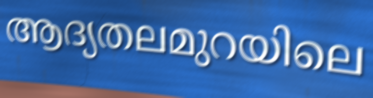
ആദ്യതലമുറയിലെ